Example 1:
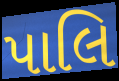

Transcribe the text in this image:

પાલિ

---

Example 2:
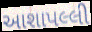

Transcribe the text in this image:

આશાપલ્લી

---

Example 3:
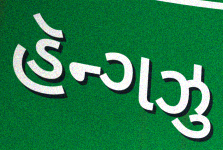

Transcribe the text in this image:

હૅન્ગઝુ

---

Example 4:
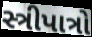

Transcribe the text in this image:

સ્ત્રીપાત્રો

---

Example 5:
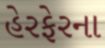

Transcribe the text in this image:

હેરફેરના